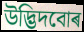
উদ্ভিদবোৰ